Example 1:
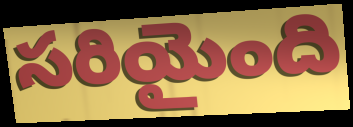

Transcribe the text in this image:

సరియైంది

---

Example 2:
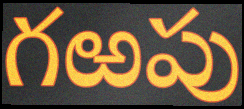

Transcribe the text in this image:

గఱపు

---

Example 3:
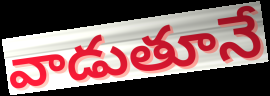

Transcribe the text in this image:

వాడుతూనే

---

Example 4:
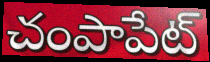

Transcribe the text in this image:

చంపాపేట్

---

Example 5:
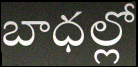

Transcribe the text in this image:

బాధల్లో